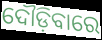
ଦୌଡ଼ିବାରେ